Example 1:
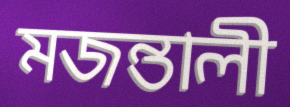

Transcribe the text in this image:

মজন্তালী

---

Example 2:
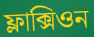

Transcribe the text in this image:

ফ্লাক্সিওন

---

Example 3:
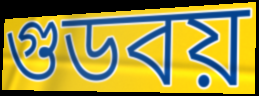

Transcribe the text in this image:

গুডবয়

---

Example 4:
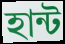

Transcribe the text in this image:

হান্ট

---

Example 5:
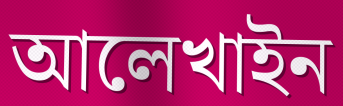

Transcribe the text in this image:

আলেখাইন